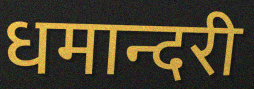
धमान्दरी